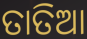
ତାତିଆ